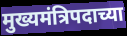
मुख्यमंत्रिपदाच्या